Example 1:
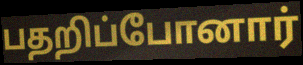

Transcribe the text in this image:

பதறிப்போனார்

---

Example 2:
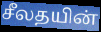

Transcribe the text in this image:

சீலதயின்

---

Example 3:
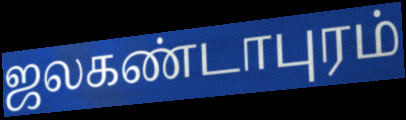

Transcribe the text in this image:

ஜலகண்டாபுரம்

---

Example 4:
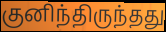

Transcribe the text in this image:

குனிந்திருந்தது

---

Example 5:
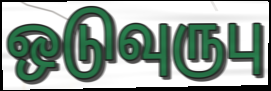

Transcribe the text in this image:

ஒடுவுருபு